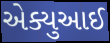
એક્યુઆઈ